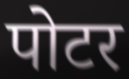
पोटर